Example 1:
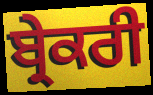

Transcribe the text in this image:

ਬ੍ਰੇਕਰੀ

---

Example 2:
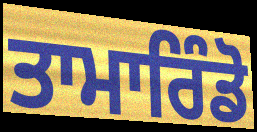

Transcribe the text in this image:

ਤਾਮਾਰਿੰਡੋ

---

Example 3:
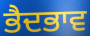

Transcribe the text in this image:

ਭੈਦਭਾਵ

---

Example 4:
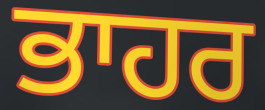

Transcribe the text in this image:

ਭਾਹਰ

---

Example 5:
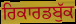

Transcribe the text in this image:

ਰਿਕਾਰਡਬੁੱਕ